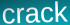
crack